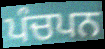
ਪੰਚਪਨ